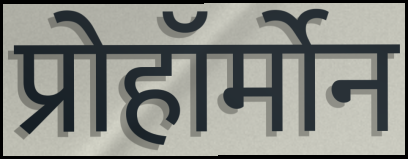
प्रोहॉर्मोन